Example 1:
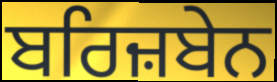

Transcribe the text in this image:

ਬਰਿਜ਼ਬੇਨ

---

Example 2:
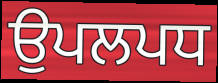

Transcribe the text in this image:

ਉਪਲਪਧ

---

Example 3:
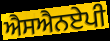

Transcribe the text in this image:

ਐਸਐਨਏਪੀ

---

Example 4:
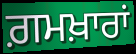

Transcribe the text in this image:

ਗ਼ਮਖ਼ਾਰਾਂ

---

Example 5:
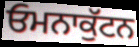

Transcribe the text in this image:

ਓਮਨਾਕੁੱਟਨ